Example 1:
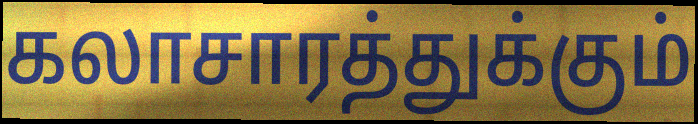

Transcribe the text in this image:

கலாசாரத்துக்கும்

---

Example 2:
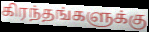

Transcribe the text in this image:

கிரந்தங்களுக்கு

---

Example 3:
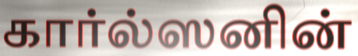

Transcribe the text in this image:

கார்ல்ஸனின்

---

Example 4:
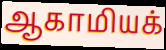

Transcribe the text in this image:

ஆகாமியக்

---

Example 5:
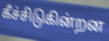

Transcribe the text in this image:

கீச்சிடுகின்றன